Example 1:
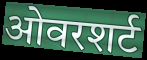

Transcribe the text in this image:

ओवरशर्ट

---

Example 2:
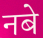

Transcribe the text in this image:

नबे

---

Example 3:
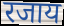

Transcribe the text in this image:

रजाय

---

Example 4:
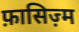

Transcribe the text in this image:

फ़ासिज़्म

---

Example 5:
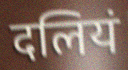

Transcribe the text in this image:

दलियं